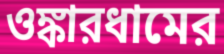
ওঙ্কারধামের